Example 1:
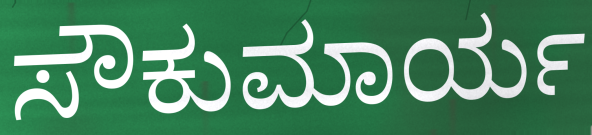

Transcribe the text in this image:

ಸೌಕುಮಾರ್ಯ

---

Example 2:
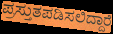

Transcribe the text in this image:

ಪ್ರಸ್ತುತಪಡಿಸಲಿದ್ದಾರೆ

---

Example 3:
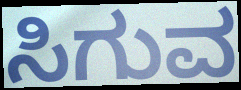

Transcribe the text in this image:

ಸಿಗುವ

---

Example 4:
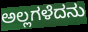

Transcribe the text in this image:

ಅಲ್ಲಗಳೆದನು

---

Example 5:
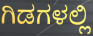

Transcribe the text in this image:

ಗಿಡಗಳಲ್ಲಿ